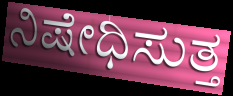
ನಿಷೇಧಿಸುತ್ತ